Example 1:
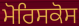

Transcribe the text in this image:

ਮੋਰਿਸਕੋਸ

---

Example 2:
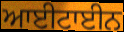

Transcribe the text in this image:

ਆਈਟਾਈਨ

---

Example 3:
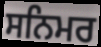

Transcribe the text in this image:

ਸਨਿਮਰ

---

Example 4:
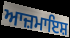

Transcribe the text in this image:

ਆਜ਼ਮਾਇਸ਼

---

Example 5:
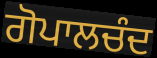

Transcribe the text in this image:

ਗੋਪਾਲਚੰਦ